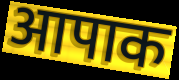
आपाक